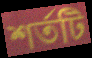
শর্তটি